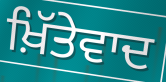
ਖ਼ਿੱਤੇਵਾਦ